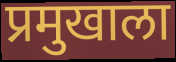
प्रमुखाला